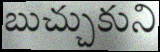
బుచ్చుకుని